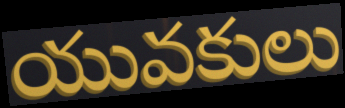
యువకులు